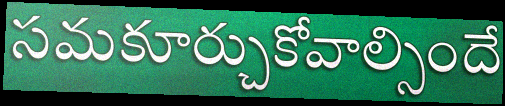
సమకూర్చుకోవాల్సిందే